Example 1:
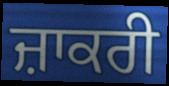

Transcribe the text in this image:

ਜ਼ਾਕਰੀ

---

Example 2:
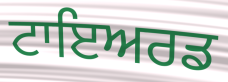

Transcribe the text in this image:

ਟਾਇਅਰਡ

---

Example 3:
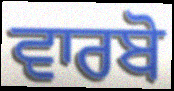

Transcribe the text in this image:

ਵਾਰਬੋ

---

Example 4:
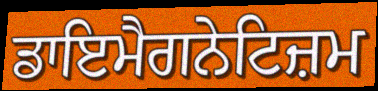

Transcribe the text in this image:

ਡਾਇਮੈਗਨੇਟਿਜ਼ਮ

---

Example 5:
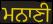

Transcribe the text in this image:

ਮਨਾਣੀ